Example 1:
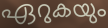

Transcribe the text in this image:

ഏറുകയും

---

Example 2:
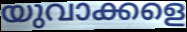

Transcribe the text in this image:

യുവാക്കളെ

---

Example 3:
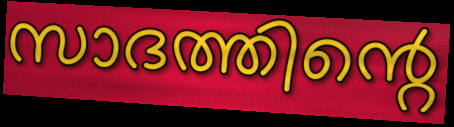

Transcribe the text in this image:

സാദത്തിന്റെ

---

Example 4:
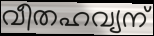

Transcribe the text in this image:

വീതഹവ്യന്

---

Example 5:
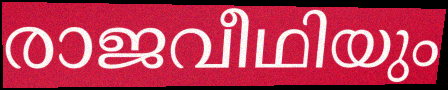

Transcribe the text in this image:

രാജവീഥിയും